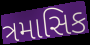
ત્રમાસિક